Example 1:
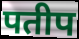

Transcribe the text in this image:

पतीप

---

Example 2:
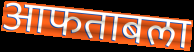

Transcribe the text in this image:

आफताबला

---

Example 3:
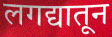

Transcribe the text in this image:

लगद्यातून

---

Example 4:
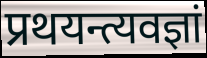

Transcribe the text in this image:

प्रथयन्त्यवज्ञां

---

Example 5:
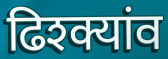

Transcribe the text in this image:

ढिश्क्यांव